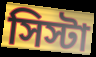
সিস্টা